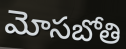
మోసబోతి